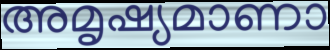
അമൃഷ്യമാണാ